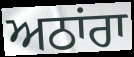
ਅਠਾਂਰਾ